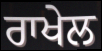
ਰਾਖੇਲ